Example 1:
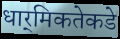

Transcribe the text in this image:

धार्मिकतेकडे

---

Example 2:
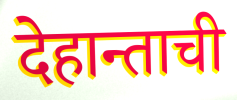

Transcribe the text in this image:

देहान्ताची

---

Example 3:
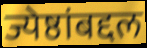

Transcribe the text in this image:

ज्येष्ठांबद्दल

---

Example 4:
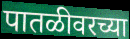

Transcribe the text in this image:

पातळीवरच्या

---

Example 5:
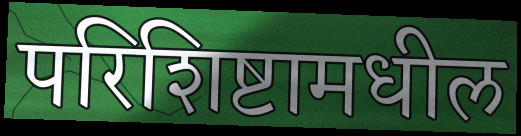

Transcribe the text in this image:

परिशिष्टामधील